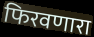
फिरवणारा